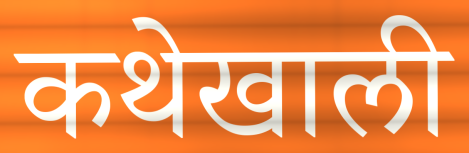
कथेखाली